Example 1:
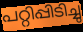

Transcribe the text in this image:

പറ്റിപ്പിടിച്ചു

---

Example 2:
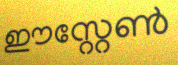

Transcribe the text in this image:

ഈസ്റ്റേൺ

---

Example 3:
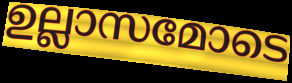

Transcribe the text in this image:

ഉല്ലാസമോടെ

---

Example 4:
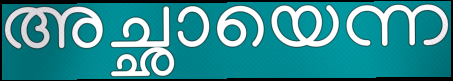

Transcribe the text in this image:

അച്ഛായെന്ന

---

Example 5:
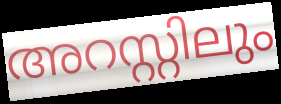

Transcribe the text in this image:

അറസ്റ്റിലും